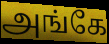
அங்கே